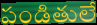
పండితులే